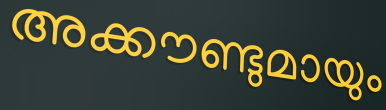
അക്കൗണ്ടുമായും